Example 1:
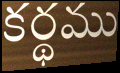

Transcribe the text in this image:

కర్థము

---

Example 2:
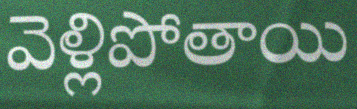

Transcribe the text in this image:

వెళ్లిపోతాయి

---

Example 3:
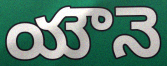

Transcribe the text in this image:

యౌనె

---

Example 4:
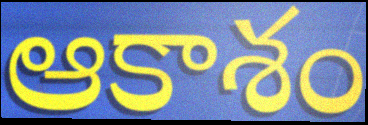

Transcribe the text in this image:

ఆకాశం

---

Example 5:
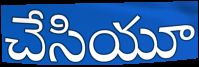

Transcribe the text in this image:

చేసియూ